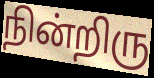
நின்றிரு